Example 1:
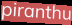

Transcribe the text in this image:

piranthu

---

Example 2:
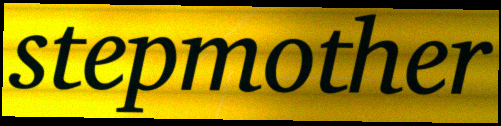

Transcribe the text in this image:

stepmother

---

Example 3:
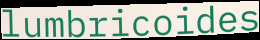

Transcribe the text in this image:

lumbricoides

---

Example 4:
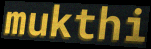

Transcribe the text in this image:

mukthi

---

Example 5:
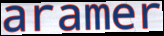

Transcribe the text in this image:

aramer